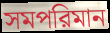
সমপরিমান